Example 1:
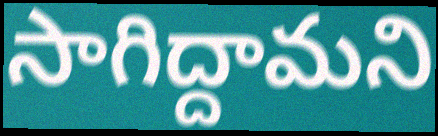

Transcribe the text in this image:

సాగిద్దామని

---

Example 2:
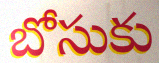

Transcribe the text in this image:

బోసుకు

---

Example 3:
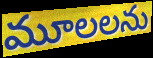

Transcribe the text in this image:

మూలలను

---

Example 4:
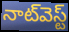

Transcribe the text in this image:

నాట్‌వెస్ట్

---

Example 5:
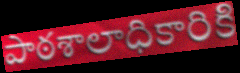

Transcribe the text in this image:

పాఠశాలాధికారికి